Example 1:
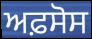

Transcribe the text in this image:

ਅਫ਼ਸੋਸ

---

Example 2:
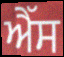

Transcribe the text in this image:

ਐੱਸ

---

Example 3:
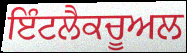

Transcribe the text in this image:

ਇੰਟਲੈਕਚੂਅਲ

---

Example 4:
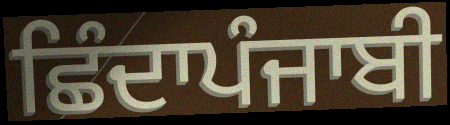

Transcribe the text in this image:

ਛਿੰਦਾਪੰਜਾਬੀ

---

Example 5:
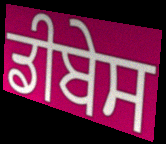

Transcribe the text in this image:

ਡੀਬੇਸ